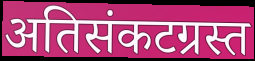
अतिसंकटग्रस्त